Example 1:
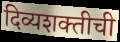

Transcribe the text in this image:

दिव्यशक्तीची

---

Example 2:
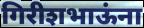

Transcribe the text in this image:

गिरीशभाऊंना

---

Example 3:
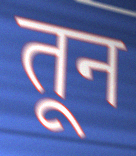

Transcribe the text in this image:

तून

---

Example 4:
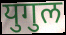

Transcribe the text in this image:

युगुल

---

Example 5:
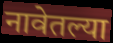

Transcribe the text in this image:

नावेतल्या